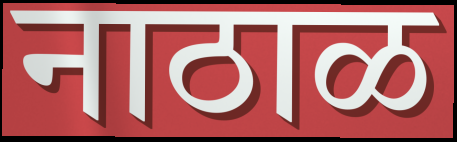
नाठाळ